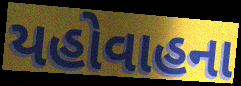
યહોવાહના